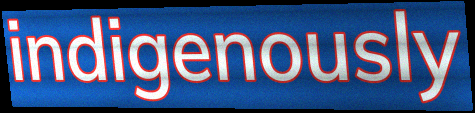
indigenously